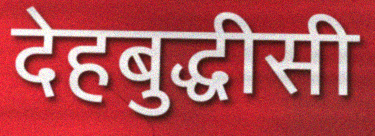
देहबुद्धीसी